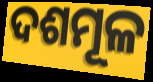
ଦଶମୂଳ